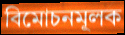
বিমোচনমূলক